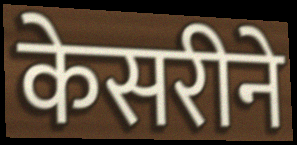
केसरीने